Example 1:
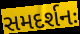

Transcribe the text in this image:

સમદર્શનઃ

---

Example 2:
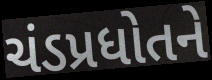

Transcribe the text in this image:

ચંડપ્રધોતને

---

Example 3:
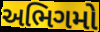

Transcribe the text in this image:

અભિગમો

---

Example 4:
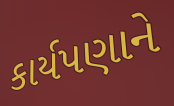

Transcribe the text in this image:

કાર્યપણાને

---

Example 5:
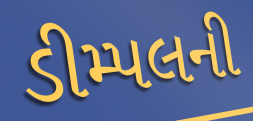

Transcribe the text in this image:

ડીમ્પલની